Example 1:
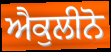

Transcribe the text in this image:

ਐਕੁਲੀਨੋ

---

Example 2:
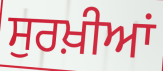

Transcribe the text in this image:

ਸੁਰਖ਼ੀਆਂ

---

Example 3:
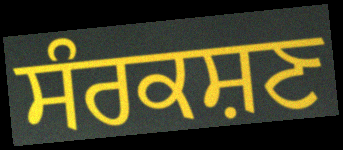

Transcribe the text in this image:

ਸੰਰਕਸ਼ਣ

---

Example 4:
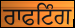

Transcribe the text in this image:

ਰਾਫਟਿੰਗ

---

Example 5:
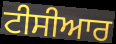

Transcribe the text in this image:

ਟੀਸੀਆਰ